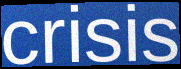
crisis